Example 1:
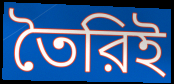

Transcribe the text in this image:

তৈরিই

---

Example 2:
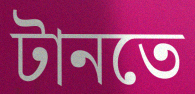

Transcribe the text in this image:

টানতে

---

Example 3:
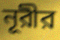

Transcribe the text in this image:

নূরীর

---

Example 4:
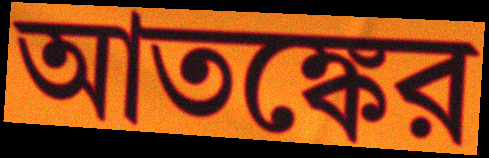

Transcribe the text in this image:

আতঙ্কের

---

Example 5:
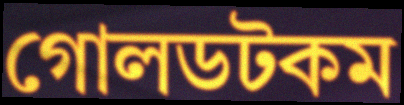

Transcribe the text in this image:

গোলডটকম